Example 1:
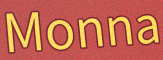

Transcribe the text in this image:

Monna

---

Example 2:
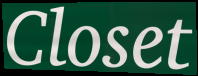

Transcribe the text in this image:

Closet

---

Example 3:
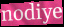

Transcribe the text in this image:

nodiye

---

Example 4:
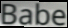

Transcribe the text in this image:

Babe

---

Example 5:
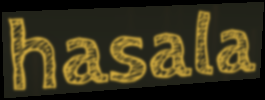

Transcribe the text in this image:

hasala